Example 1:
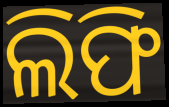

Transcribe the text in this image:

ଲିଫି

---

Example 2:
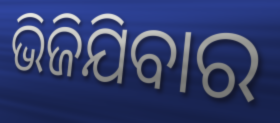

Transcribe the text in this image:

ଭିଜିଯିବାର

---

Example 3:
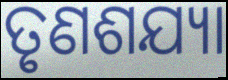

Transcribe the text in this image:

ତୃଣଶଯ୍ୟା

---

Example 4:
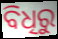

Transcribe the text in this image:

ବିଧିରୁ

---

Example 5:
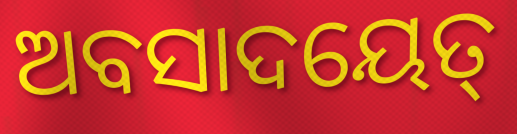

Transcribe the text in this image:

ଅବସାଦୟେତ୍